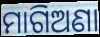
ମାଗିଅଣା